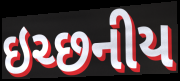
ઇચ્છનીય